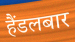
हैंडलबार